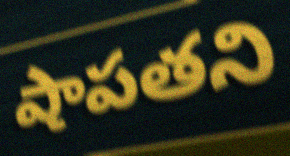
షాపతని